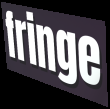
fringe